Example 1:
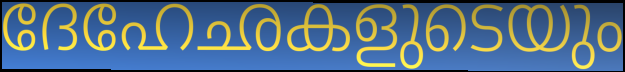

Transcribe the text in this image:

ദേഹേഛകളുടെയും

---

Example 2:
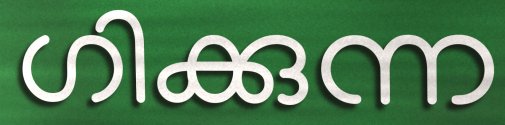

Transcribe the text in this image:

ഗിക്കുന്ന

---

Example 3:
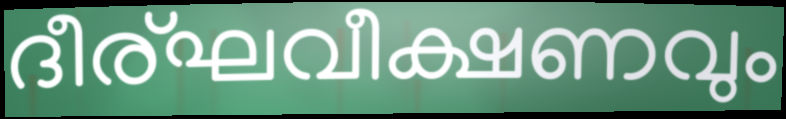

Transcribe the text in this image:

ദീര്ഘവീക്ഷണവും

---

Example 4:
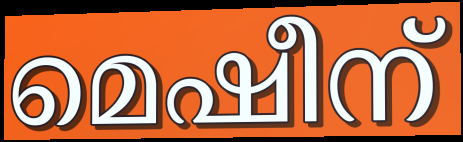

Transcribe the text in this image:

മെഷീന്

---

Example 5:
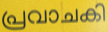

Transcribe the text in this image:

പ്രവാചകി